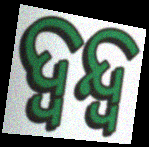
ଦ୍ବନ୍ଦ୍ବ